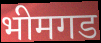
भीमगड